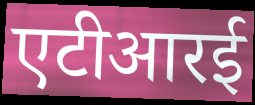
एटीआरई